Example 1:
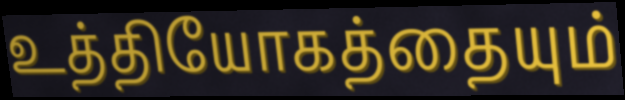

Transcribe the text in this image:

உத்தியோகத்தையும்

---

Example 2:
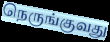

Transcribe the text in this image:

நெருங்குவது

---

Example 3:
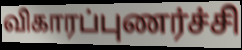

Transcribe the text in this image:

விகாரப்புணர்ச்சி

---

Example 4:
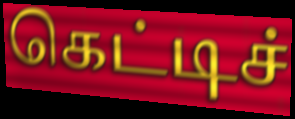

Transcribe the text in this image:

கெட்டிச்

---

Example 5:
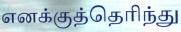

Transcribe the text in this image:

எனக்குத்தெரிந்து